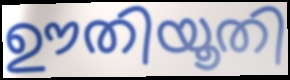
ഊതിയൂതി